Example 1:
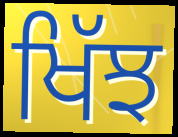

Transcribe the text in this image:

ਖਿੱਝ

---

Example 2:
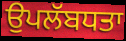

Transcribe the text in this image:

ਉਪਲੱਬਧਤਾ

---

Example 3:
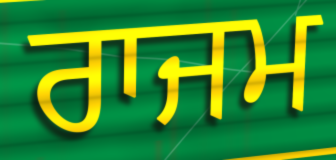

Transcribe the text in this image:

ਰਾਜਮ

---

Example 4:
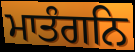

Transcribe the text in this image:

ਮਾਤੰਗਨਿ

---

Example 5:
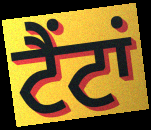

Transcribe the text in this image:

ਟੈਂਟਾਂ